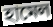
হামেল